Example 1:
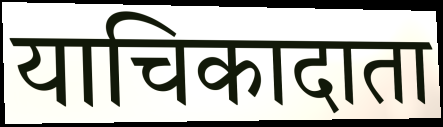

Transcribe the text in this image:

याचिकादाता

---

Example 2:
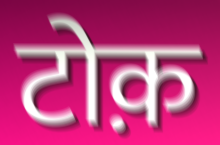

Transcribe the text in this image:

टोक़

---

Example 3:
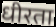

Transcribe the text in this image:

धीरता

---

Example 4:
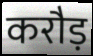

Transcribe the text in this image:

करौड़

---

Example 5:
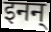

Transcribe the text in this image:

इनन्